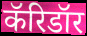
कॅरिडॉर